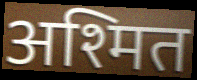
अश्मित